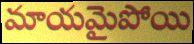
మాయమైపోయి